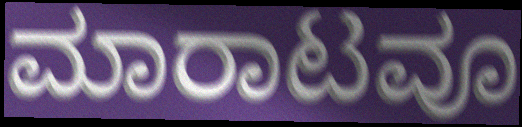
ಮಾರಾಟವೂ